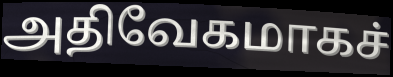
அதிவேகமாகச்